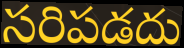
సరిపడదు